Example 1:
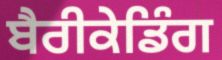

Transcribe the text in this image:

ਬੈਰੀਕੇਡਿੰਗ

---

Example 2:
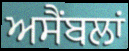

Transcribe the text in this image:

ਅਸੈਂਬਲਾਂ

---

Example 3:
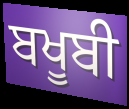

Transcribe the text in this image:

ਬਖੂਬੀ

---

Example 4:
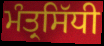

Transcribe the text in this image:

ਮੰਤ੍ਰਸਿੱਧੀ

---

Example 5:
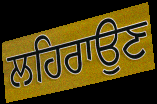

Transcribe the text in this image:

ਲਹਿਰਾਉਣ